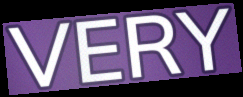
VERY